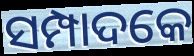
ସମ୍ପାଦକେ